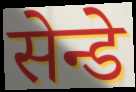
सेन्डे